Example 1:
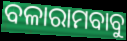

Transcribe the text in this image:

ବଳାରାମବାବୁ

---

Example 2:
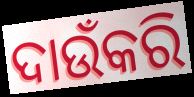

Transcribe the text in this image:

ଦାଉଁକରି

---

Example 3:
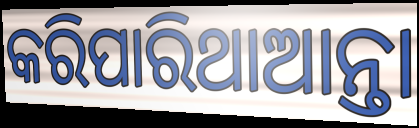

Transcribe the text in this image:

କରିପାରିଥାଆନ୍ତା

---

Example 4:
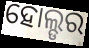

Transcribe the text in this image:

ହୋଲ୍ଡର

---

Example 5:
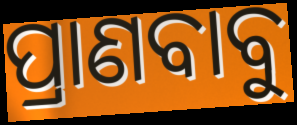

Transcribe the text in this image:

ପ୍ରାଣବାବୁ